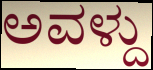
ಅವಳ್ದು